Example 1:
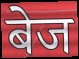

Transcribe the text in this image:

बेज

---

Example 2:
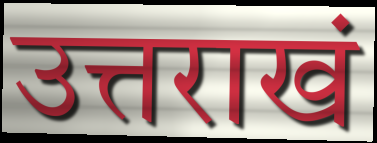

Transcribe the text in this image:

उत्तराखं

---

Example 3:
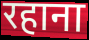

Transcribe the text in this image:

रहाना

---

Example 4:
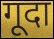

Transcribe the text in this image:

गूदा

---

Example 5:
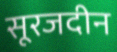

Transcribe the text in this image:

सूरजदीन